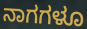
ನಾಗಗಳೂ